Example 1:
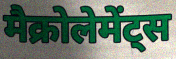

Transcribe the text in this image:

मैक्रोलेमेंट्स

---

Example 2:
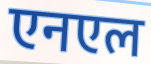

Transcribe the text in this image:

एनएल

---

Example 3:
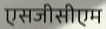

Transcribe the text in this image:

एसजीसीएम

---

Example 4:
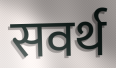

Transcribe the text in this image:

सवर्थ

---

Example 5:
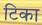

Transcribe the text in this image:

टिका